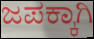
ಜಪಕ್ಕಾಗಿ